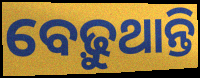
ବେଢ଼ୁଥାନ୍ତି